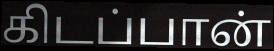
கிடப்பான்